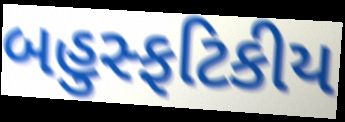
બહુસ્ફટિકીય